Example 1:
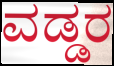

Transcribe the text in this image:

ವಡ್ಡರ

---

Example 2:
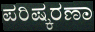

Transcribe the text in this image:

ಪರಿಷ್ಕರಣಾ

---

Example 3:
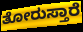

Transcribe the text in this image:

ತೋರುಸ್ತಾರೆ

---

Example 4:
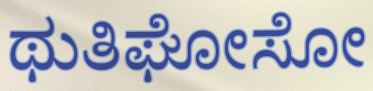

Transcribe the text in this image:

ಥುತಿಘೋಸೋ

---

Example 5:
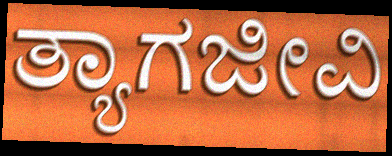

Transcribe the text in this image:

ತ್ಯಾಗಜೀವಿ